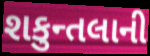
શકુન્તલાની